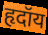
हृदॉय